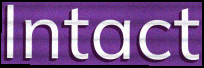
Intact